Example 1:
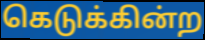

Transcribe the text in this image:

கெடுக்கின்ற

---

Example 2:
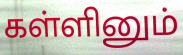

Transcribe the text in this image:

கள்ளினும்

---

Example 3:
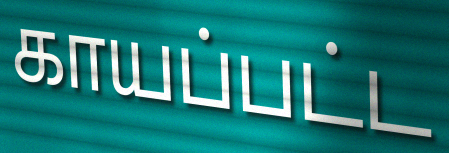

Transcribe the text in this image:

காயப்பட்ட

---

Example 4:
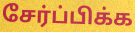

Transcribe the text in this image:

சேர்ப்பிக்க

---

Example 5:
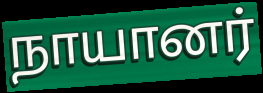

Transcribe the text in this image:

நாயானர்